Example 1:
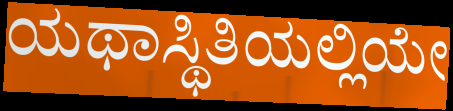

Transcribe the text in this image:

ಯಥಾಸ್ಥಿತಿಯಲ್ಲಿಯೇ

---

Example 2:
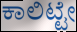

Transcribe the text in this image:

ಕಾಲಿಟ್ಟೇ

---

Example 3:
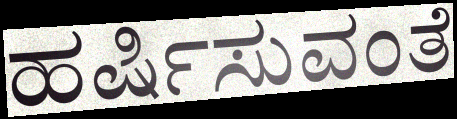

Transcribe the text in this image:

ಹರ್ಷಿಸುವಂತೆ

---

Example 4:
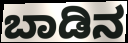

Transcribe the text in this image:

ಬಾಡಿನ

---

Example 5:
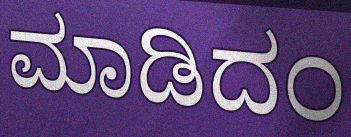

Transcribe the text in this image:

ಮಾಡಿದಂ